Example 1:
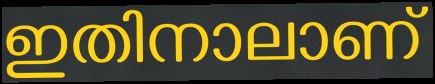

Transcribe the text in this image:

ഇതിനാലാണ്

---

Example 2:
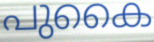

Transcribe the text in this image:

പുകൈ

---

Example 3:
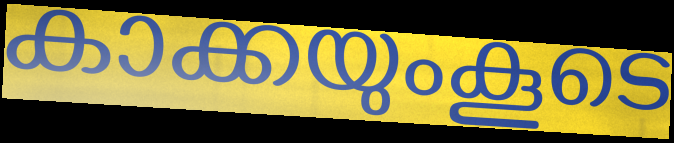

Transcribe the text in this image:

കാക്കയുംകൂടെ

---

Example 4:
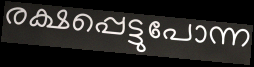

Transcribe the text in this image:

രക്ഷപ്പെട്ടുപോന്ന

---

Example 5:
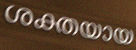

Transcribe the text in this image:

ശക്തയായ